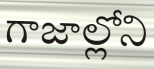
గాజాల్లోని